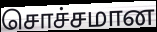
சொச்சமான